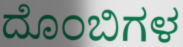
ದೊಂಬಿಗಳ